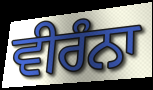
ਵੀਰੰਨਾ